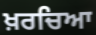
ਖ਼ਰਚਿਆ